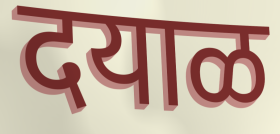
दयाळ